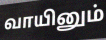
வாயினும்